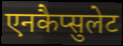
एनकैप्सुलेट